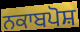
ਨਕਾਬਪੋਸ਼